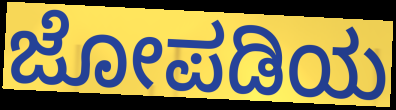
ಜೋಪಡಿಯ